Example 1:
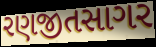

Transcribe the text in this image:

રણજીતસાગર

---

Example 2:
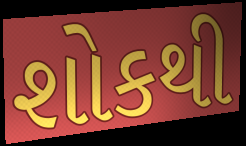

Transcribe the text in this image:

શોકથી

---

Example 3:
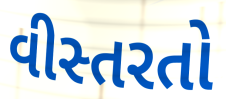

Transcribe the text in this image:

વીસ્તરતો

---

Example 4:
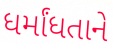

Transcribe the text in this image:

ધર્માંધતાને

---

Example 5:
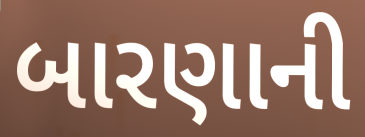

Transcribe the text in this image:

બારણાની